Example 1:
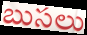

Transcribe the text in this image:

బుసలు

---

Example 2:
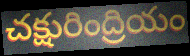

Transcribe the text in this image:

చక్షురింద్రియం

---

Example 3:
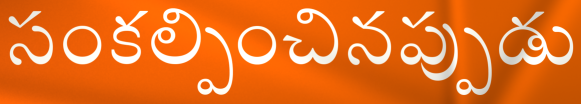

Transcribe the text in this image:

సంకల్పించినప్పుడు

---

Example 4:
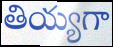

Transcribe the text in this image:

తియ్యగా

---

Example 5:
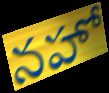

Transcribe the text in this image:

నహో